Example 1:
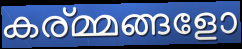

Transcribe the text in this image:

കര്മ്മങ്ങളോ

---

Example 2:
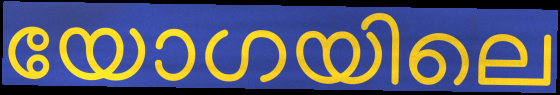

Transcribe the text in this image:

യോഗയിലെ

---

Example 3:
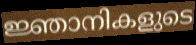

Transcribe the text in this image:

ജ്ഞാനികളുടെ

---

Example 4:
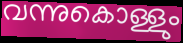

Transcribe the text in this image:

വന്നുകൊള്ളും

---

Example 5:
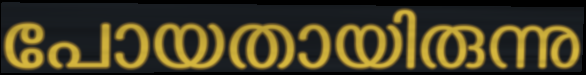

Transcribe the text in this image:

പോയതായിരുന്നു